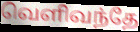
வெளிவந்தே